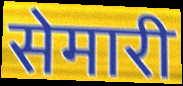
सेमारी